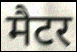
मैटर